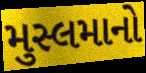
મુસ્લમાનો